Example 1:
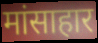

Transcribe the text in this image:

मांसाहार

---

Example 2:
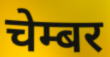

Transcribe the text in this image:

चेम्बर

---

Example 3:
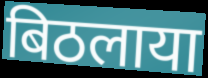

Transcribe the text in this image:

बिठलाया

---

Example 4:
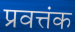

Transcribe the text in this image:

प्रवत्तंक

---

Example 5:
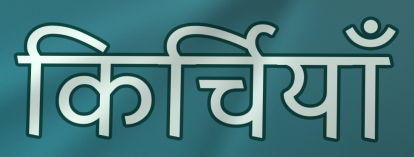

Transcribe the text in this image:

किर्चियाँ